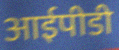
आईपीडी